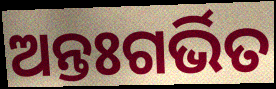
ଅନ୍ତଃଗର୍ଭିତ